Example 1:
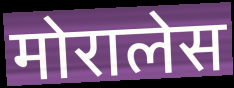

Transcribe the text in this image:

मोरालेस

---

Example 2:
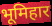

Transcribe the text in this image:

भूमिहार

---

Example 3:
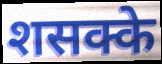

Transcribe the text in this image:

शसक्के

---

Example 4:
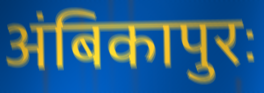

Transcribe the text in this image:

अंबिकापुरः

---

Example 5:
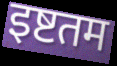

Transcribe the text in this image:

इष्टतम